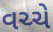
વચ્ચે